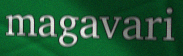
magavari